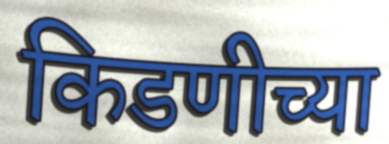
किडणीच्या